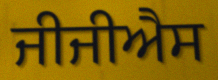
ਜੀਜੀਐਸ